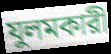
যুলমকারী